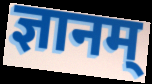
ज्ञानम्